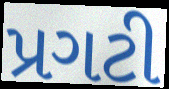
પ્રગટી